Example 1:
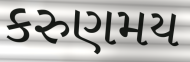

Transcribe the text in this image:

કરુણમય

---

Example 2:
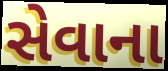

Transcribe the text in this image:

સેવાના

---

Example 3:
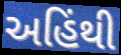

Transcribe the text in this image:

અહિંથી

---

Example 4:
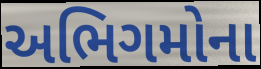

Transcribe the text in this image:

અભિગમોના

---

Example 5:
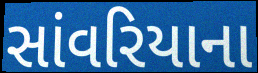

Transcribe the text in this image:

સાંવરિયાના